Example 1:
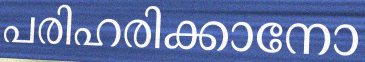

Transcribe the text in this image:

പരിഹരിക്കാനോ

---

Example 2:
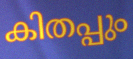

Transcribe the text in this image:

കിതപ്പും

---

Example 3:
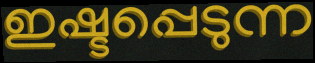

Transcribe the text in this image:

ഇഷ്ടപ്പെടുന്ന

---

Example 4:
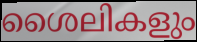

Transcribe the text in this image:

ശൈലികളും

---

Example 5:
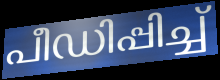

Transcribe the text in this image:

പീഡിപ്പിച്ച്